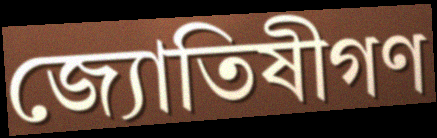
জ্যোতিষীগণ